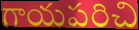
గాయపరిచి